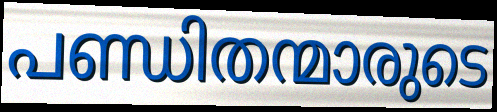
പണ്ഡിതന്മാരുടെ